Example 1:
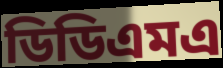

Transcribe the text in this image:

ডিডিএমএ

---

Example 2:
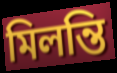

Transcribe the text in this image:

মিলন্তি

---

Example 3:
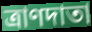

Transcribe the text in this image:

ত্রাণদাতা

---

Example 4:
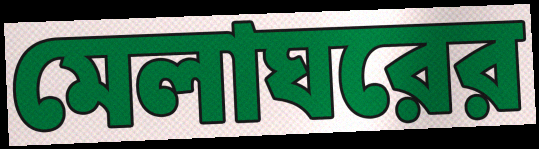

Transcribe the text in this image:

মেলাঘরের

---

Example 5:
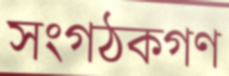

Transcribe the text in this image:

সংগঠকগণ